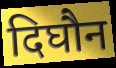
दिघौन